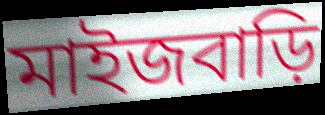
মাইজবাড়ি